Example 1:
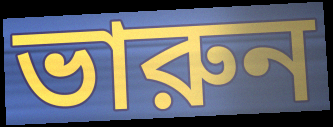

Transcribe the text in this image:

ভারুন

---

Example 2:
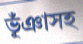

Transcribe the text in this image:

ভূঁঞাসহ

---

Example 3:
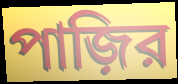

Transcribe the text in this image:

পাজ়ির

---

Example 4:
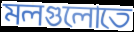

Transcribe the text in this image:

মলগুলোতে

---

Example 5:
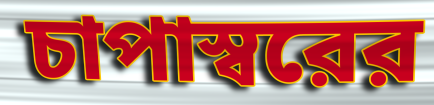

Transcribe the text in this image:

চাপাস্বরের